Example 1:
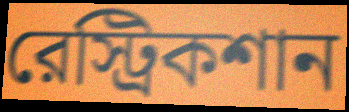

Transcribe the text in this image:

রেস্ট্রিকশান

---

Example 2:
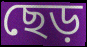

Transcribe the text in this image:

ছেড়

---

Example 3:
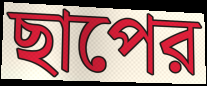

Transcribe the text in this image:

ছাপের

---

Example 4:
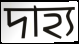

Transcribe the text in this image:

দাহ্য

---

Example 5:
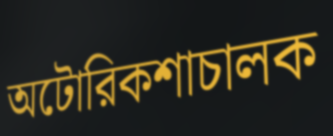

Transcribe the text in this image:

অটোরিকশাচালক